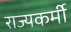
राज्यकर्मी